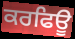
ਕਰਫਿਊ